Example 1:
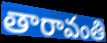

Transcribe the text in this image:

తారావంతి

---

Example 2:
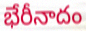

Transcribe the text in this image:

భేరీనాదం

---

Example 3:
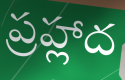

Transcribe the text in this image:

ప్రహ్లాద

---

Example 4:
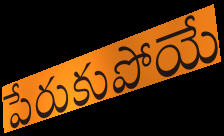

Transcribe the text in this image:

పేరుకుపోయే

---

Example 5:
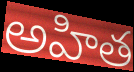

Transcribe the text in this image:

అహిత